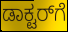
ಡಾಕ್ಟರ್‌ಗೆ